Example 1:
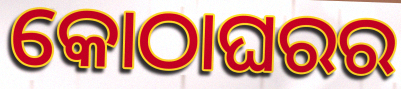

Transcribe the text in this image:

କୋଠାଘରର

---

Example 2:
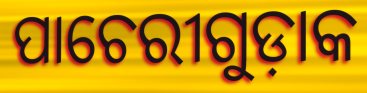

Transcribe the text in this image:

ପାଚେରୀଗୁଡ଼ାକ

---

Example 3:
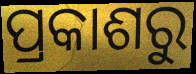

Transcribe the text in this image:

ପ୍ରକାଶରୁ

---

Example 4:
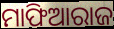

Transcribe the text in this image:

ମାଫିଆରାଜ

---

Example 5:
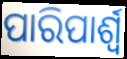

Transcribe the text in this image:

ପାରିପାର୍ଶ୍ୱ